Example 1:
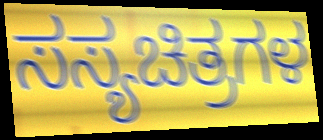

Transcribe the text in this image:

ಸಸ್ಯಚಿತ್ರಗಳ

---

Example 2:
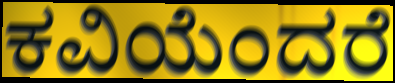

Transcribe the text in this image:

ಕವಿಯೆಂದರೆ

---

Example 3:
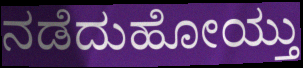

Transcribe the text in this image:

ನಡೆದುಹೋಯ್ತು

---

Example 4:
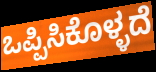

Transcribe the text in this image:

ಒಪ್ಪಿಸಿಕೊಳ್ಳದೆ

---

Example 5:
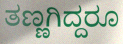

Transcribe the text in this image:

ತಣ್ಣಗಿದ್ದರೂ